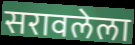
सरावलेला